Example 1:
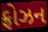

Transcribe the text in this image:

ફ્રોઝન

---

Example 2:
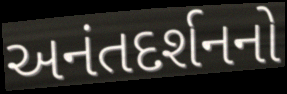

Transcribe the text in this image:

અનંતદર્શનનો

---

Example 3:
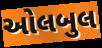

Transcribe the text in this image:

ઓલબુલ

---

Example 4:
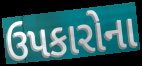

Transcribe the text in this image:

ઉપકારોના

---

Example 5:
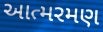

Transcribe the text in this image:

આત્મરમણ